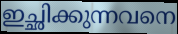
ഇച്ഛിക്കുന്നവനെ